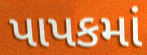
પાપકમાં